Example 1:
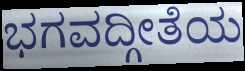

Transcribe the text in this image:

ಭಗವದ್ಗೀತೆಯ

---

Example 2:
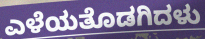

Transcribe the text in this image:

ಎಳೆಯತೊಡಗಿದಳು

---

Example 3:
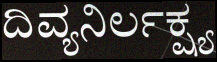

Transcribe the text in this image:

ದಿವ್ಯನಿರ್ಲಕ್ಷ್ಯ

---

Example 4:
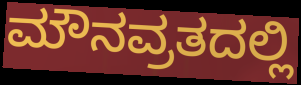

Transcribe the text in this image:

ಮೌನವ್ರತದಲ್ಲಿ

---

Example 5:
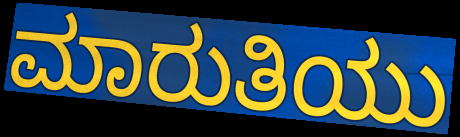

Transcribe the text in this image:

ಮಾರುತಿಯು